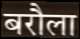
बरौला